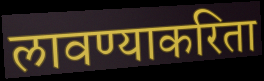
लावण्याकरिता